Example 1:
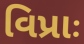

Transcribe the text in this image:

વિપ્રાઃ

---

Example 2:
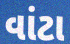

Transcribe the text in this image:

વાંટા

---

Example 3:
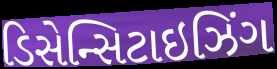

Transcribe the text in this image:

ડિસેન્સિટાઇઝિંગ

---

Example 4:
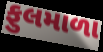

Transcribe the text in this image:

ફુલમાળા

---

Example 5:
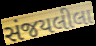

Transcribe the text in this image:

સંજયલીલા